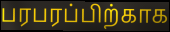
பரபரப்பிற்காக